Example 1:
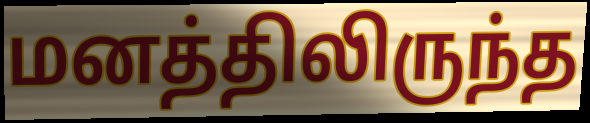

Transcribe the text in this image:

மனத்திலிருந்த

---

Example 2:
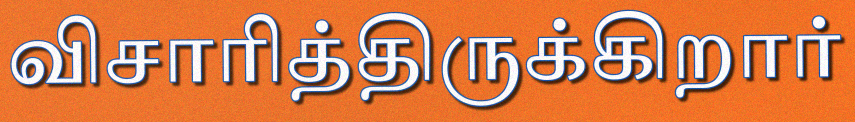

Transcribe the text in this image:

விசாரித்திருக்கிறார்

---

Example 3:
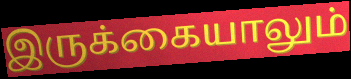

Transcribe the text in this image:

இருக்கையாலும்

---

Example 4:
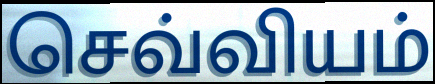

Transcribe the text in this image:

செவ்வியம்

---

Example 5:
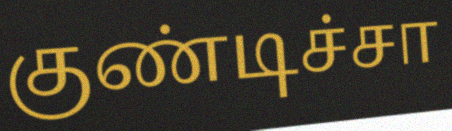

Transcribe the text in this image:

குண்டிச்சா